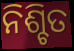
ନିଶ୍ଚିତ